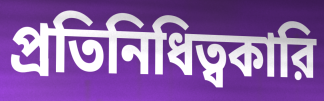
প্রতিনিধিত্বকারি